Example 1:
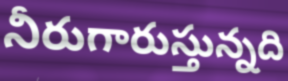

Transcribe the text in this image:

నీరుగారుస్తున్నది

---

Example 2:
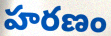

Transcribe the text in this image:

హరణం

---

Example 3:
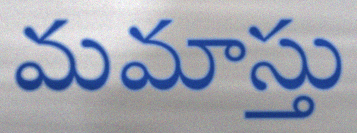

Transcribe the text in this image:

మమాస్తు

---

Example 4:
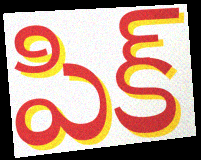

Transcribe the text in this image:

పిక్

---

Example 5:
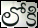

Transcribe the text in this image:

లోకి